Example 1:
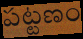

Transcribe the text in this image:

పట్టణం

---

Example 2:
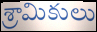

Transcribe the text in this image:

శ్రామికులు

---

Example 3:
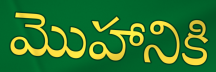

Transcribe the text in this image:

మొహానికి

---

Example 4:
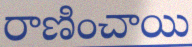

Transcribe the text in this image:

రాణించాయి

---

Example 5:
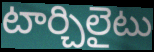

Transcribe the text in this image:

టార్చిలైటు